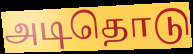
அடிதொடு